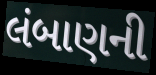
લંબાણની